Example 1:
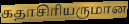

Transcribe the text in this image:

கதாசிரியருமான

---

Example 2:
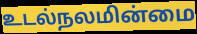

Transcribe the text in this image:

உடல்நலமின்மை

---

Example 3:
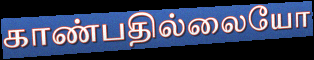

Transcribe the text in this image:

காண்பதில்லையோ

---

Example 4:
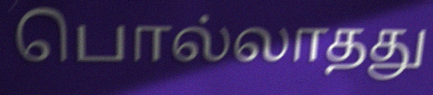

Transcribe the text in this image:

பொல்லாதது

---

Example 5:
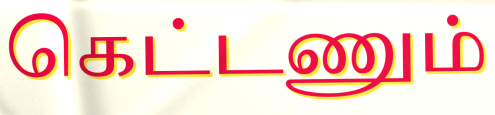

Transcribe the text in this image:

கெட்டணும்